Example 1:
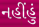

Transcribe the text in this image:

નહીંહું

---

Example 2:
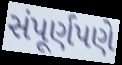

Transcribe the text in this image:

સંપૂર્ણપણે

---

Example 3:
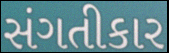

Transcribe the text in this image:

સંગતીકાર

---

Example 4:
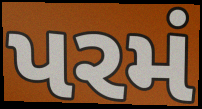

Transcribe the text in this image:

પરમં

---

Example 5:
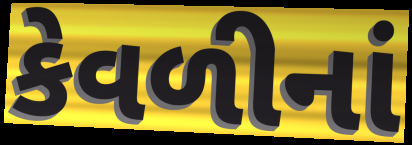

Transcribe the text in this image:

કેવળીનાં